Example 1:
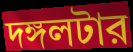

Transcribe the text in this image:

দঙ্গলটার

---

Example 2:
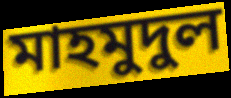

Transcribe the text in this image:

মাহমুদুল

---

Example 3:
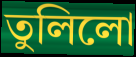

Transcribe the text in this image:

তুলিলো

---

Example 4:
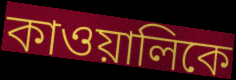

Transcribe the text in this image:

কাওয়ালিকে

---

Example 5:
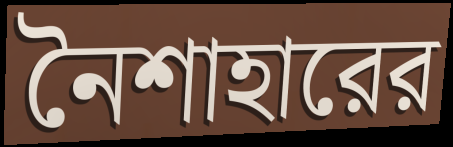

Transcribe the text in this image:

নৈশাহারের